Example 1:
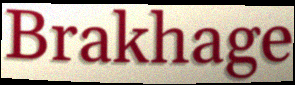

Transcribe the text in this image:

Brakhage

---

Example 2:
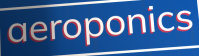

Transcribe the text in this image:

aeroponics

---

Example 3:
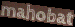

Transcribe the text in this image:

mahobat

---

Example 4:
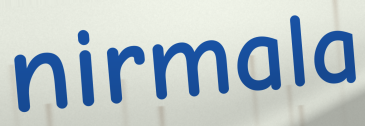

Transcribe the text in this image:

nirmala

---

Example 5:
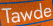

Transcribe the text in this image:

Tawde